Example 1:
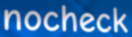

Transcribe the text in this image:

nocheck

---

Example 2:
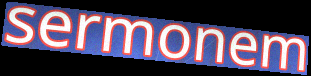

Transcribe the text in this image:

sermonem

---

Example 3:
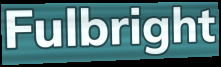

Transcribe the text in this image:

Fulbright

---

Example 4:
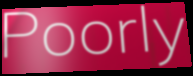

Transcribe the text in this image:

Poorly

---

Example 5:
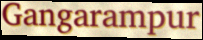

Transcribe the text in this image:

Gangarampur